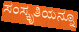
ಸಂಸ್ಕೃತಿಯನ್ನೂ